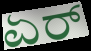
ಏರ್